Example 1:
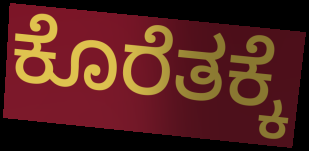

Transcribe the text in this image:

ಕೊರೆತಕ್ಕೆ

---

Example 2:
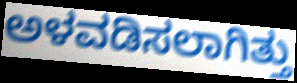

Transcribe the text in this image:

ಅಳವಡಿಸಲಾಗಿತ್ತು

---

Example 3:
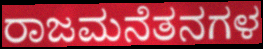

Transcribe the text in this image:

ರಾಜಮನೆತನಗಳ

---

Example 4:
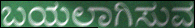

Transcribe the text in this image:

ಬಯಲಾಗಿಸುವ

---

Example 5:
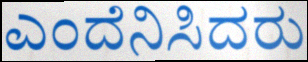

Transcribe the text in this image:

ಎಂದೆನಿಸಿದರು